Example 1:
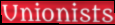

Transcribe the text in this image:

Unionists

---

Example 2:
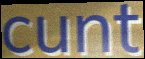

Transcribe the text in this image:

cunt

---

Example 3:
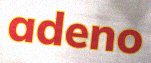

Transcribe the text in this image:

adeno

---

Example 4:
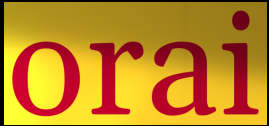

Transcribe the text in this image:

orai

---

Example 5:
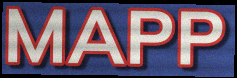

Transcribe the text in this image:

MAPP